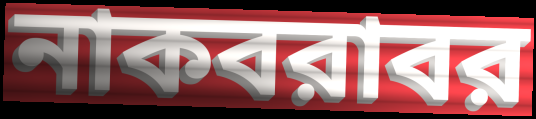
নাকবরাবর